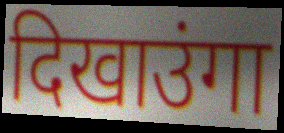
दिखाउंगा